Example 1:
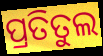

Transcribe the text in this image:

ପ୍ରତିତୁଲ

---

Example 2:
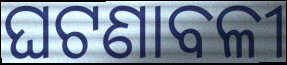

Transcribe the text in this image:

ଘଟଣାବଳୀ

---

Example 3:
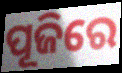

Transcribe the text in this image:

ପୂଜିରେ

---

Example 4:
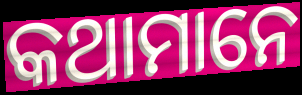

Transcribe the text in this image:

କଥାମାନେ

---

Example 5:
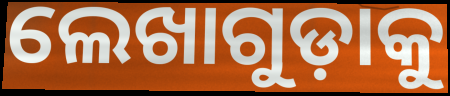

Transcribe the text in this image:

ଲେଖାଗୁଡ଼ାକୁ